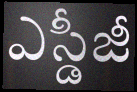
ఎస్డీజీ